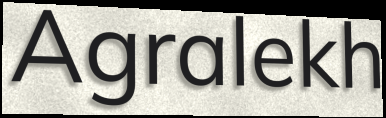
Agralekh